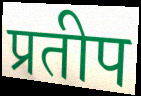
प्रतीप